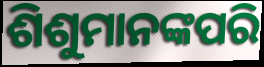
ଶିଶୁମାନଙ୍କପରି